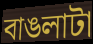
বাঙলাটা